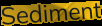
Sediment